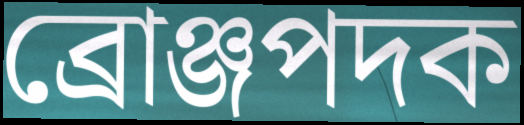
ব্রোঞ্জপদক